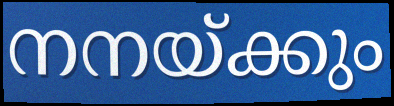
നനയ്ക്കും